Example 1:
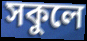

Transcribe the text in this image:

সকুলে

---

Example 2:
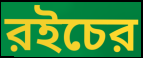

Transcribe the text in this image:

রইচের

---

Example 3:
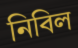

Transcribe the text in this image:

নিবিল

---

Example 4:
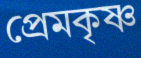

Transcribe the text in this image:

প্রেমকৃষ্ণ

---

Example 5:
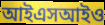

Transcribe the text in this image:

আইএসআইও